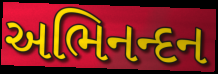
અભિનન્દન